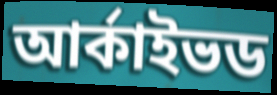
আর্কাইভড